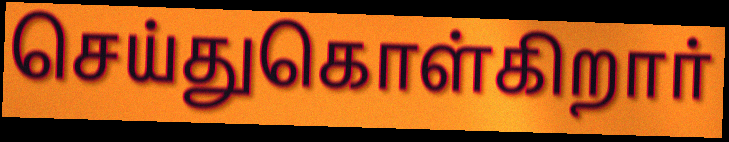
செய்துகொள்கிறார்